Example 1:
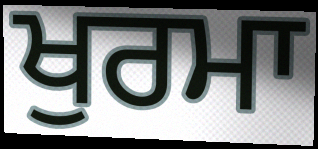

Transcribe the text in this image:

ਖੁਰਮਾ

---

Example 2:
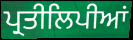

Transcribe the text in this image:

ਪ੍ਰਤੀਲਿਪੀਆਂ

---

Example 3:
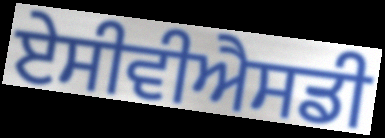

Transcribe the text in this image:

ਏਸੀਵੀਐਸਡੀ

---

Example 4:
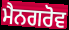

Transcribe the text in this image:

ਮੈਨਗਰੋਵ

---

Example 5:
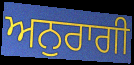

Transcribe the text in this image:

ਅਨੁਰਾਗੀ